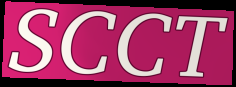
SCCT